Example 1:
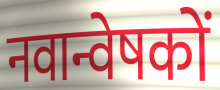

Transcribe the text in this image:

नवान्वेषकों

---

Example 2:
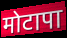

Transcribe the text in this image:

मोटापा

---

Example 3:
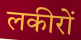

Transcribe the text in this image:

लकीरों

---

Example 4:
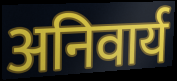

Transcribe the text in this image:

अनिवार्य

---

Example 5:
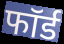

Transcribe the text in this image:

फॉर्ड